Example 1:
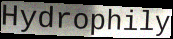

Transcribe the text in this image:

Hydrophily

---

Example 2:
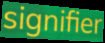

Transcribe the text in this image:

signifier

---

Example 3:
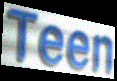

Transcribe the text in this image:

Teen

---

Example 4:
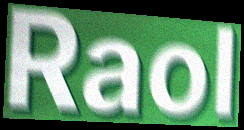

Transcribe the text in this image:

Raol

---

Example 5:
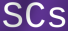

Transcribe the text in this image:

SCs